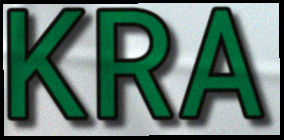
KRA